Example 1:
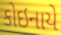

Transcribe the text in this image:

કોઇનાયે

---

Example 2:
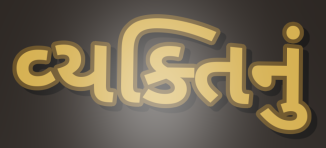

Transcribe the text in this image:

વ્‍યક્તિનું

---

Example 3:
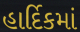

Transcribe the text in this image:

હાર્દિકમાં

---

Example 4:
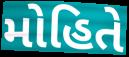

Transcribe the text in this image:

મોહિતે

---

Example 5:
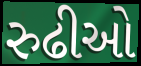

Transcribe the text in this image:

રુઢીઓ